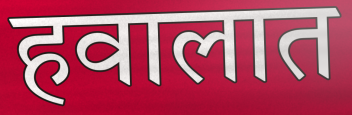
हवालात